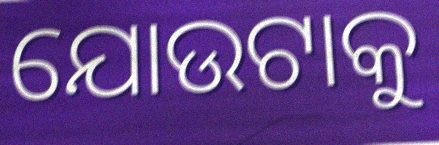
ଯୋଉଟାକୁ